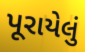
પૂરાયેલું